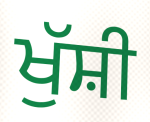
ਖੁੱਸ਼ੀ